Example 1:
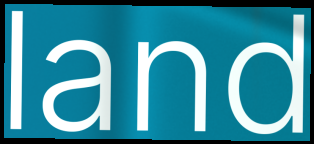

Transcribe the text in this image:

land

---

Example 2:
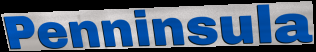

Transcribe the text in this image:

Penninsula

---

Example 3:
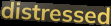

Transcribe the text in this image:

distressed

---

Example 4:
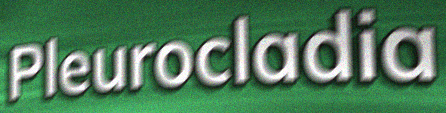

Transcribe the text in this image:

Pleurocladia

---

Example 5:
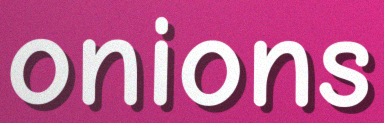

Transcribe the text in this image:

onions